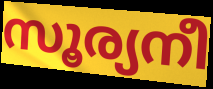
സൂര്യനീ